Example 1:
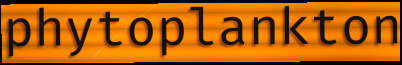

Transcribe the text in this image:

phytoplankton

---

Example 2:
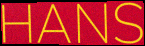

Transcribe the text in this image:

HANS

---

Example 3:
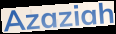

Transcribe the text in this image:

Azaziah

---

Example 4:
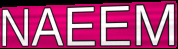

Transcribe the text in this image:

NAEEM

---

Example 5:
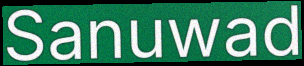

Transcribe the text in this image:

Sanuwad